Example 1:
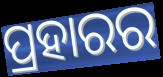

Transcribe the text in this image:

ପ୍ରହାରର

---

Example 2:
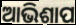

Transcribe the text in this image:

ଆଭିଶାପ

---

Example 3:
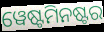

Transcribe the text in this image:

ୱେଷ୍ଟମିନଷ୍ଟର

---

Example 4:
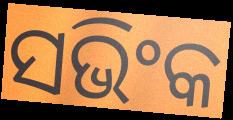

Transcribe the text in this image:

ସଭିଂକ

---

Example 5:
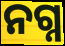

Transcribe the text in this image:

ନଗ୍ନ